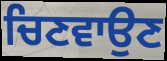
ਚਿਣਵਾਉਣ